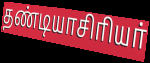
தண்டியாசிரியர்